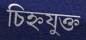
চিহ্নযুক্ত